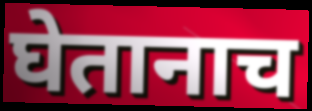
घेतानाच